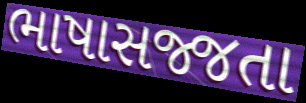
ભાષાસજ્જતા